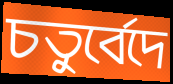
চতুর্বেদে